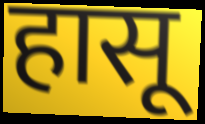
हासू